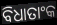
ବିଧାତାଂକ